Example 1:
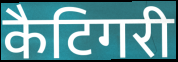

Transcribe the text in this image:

कैटिगरी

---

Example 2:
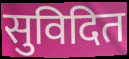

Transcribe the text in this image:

सुविदित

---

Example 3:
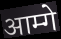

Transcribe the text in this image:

आम्गे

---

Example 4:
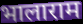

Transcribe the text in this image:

भालाराम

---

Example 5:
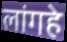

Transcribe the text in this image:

लांगहे